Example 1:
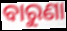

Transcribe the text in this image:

ବାରୁଣା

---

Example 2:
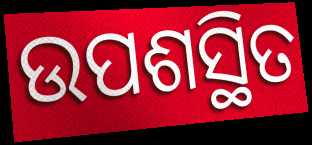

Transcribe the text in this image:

ଉପଶସ୍ଥିତ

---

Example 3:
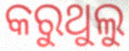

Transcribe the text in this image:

କରୁଥୁଲୁ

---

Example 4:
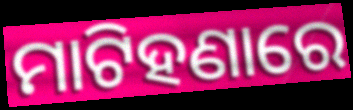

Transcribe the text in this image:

ମାଟିହଣାରେ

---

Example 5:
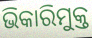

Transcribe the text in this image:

ଭିକାରିମୁକ୍ତ